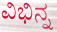
ವಿಭಿನ್ನ